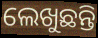
ଲେଖୁଛନ୍ତି